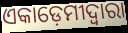
ଏକାଡ଼େମୀଦ୍ୱାରା